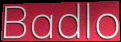
Badlo